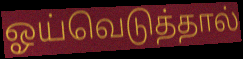
ஓய்வெடுத்தால்